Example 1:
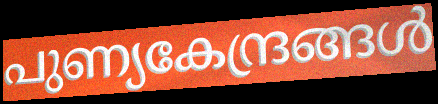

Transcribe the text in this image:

പുണ്യകേന്ദ്രങ്ങൾ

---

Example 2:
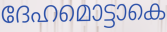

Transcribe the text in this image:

ദേഹമൊട്ടാകെ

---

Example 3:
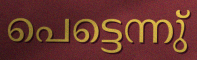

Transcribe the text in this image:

പെട്ടെന്നു്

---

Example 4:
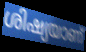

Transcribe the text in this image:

ശിഷ്യയാണ്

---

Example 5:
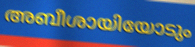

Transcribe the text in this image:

അബീശായിയോടും